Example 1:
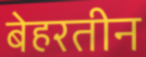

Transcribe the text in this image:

बेहरतीन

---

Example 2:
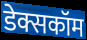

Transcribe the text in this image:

डेक्सकॉम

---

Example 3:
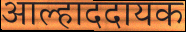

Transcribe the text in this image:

आल्हाददायक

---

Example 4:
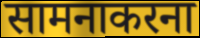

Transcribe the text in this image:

सामनाकरना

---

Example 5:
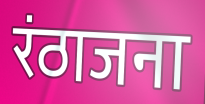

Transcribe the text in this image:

रंठाजना